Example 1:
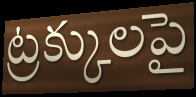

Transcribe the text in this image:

ట్రక్కులపై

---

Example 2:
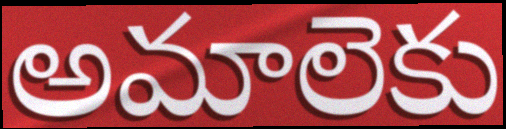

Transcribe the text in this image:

అమాలెకు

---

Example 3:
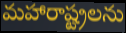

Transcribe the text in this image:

మహారాష్ట్రలను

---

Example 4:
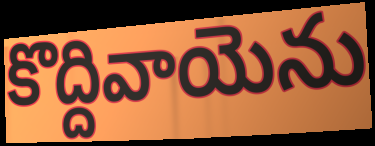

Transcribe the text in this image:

కొద్దివాయెను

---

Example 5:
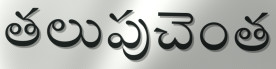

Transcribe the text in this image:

తలుపుచెంత